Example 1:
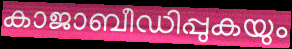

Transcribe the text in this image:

കാജാബീഡിപ്പുകയും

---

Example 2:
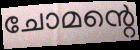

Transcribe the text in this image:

ചോമന്റെ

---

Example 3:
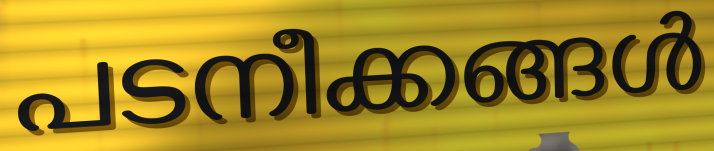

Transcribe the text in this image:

പടനീക്കങ്ങൾ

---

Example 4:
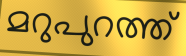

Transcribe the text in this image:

മറുപുറത്ത്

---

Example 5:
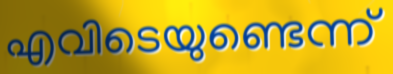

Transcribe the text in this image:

എവിടെയുണ്ടെന്ന്